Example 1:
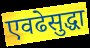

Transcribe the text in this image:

एवढेसुद्धा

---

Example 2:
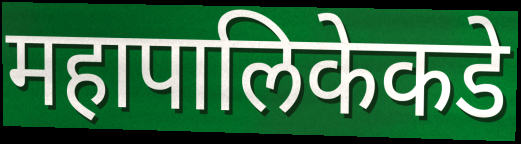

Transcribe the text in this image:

महापालिकेकडे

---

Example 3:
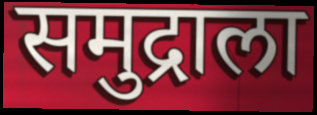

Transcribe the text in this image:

समुद्राला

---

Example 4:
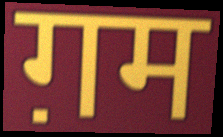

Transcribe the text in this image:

ग़म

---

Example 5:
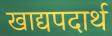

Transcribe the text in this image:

खाद्यपदार्थ